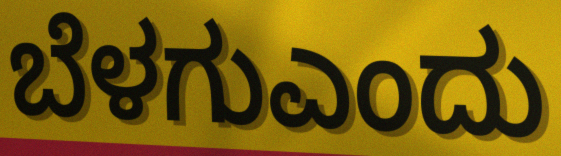
ಬೆಳಗುಎಂದು